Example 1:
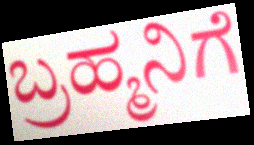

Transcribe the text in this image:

ಬ್ರಹ್ಮನಿಗೆ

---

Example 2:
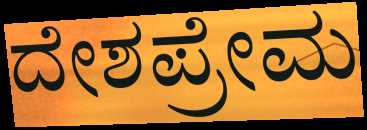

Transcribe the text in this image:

ದೇಶಪ್ರೇಮ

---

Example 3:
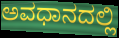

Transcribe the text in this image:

ಅವಧಾನದಲ್ಲಿ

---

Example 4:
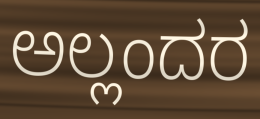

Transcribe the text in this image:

ಅಲ್ಲಂದರ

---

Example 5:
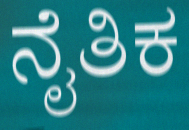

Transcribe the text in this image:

ನೈತಿಕ